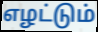
எழட்டும்